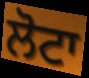
ਲੋਟਾ